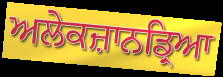
ਅਲੇਕਜ਼ਾਨਡ੍ਰਿਆ